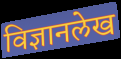
विज्ञानलेख